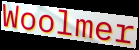
Woolmer